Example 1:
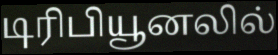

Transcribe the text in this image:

டிரிபியூனலில்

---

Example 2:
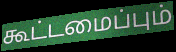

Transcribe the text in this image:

கூட்டமைப்பும்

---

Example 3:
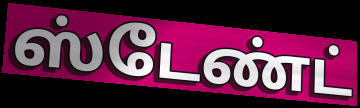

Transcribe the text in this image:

ஸ்டேண்ட்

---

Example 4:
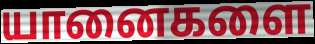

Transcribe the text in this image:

யானைகளை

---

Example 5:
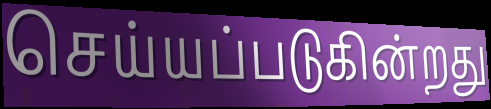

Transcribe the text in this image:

செய்யப்படுகின்றது